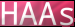
HAAs